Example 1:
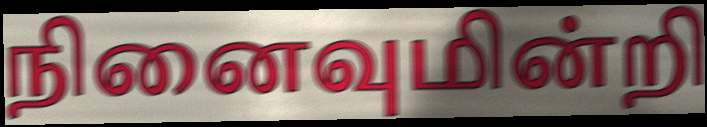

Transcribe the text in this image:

நினைவுமின்றி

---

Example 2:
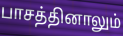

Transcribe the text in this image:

பாசத்தினாலும்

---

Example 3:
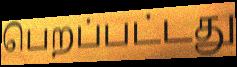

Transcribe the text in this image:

பெறப்பட்டது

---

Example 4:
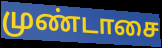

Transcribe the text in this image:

முண்டாசை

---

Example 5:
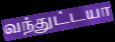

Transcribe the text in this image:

வந்துட்டயா